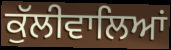
ਕੁੱਲੀਵਾਲਿਆਂ